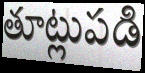
తూట్లుపడి